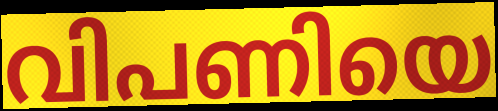
വിപണിയെ